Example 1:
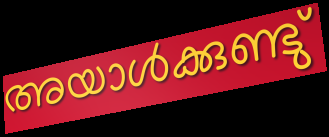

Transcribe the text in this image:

അയാൾക്കുണ്ടു്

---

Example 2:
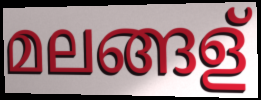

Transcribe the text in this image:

മലങ്ങള്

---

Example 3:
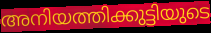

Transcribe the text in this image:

അനിയത്തിക്കുട്ടിയുടെ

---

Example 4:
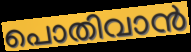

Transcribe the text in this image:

പൊതിവാൻ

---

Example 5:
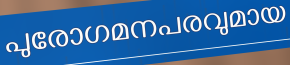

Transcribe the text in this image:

പുരോഗമനപരവുമായ